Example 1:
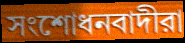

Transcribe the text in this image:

সংশোধনবাদীরা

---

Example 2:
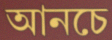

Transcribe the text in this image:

আনচে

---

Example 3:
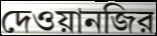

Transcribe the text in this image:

দেওয়ানজির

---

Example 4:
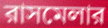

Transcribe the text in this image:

রাসমেলার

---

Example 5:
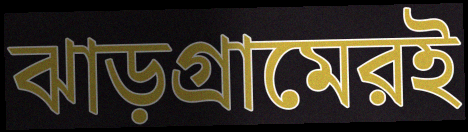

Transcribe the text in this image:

ঝাড়গ্রামেরই